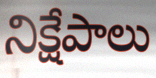
నిక్షేపాలు